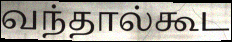
வந்தால்கூட